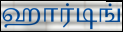
ஹார்டிங்